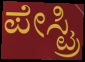
ಪೇಸ್ಟ್ರಿ